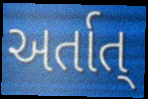
અર્તાત્